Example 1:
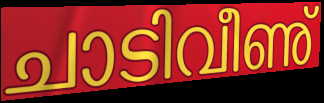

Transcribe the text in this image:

ചാടിവീണു്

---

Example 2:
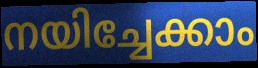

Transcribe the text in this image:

നയിച്ചേക്കാം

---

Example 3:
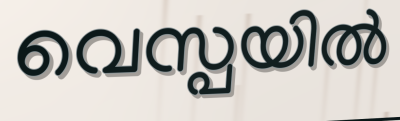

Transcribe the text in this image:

വെസ്പയിൽ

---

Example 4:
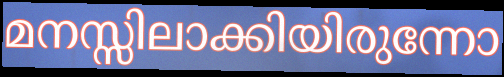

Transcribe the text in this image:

മനസ്സിലാക്കിയിരുന്നോ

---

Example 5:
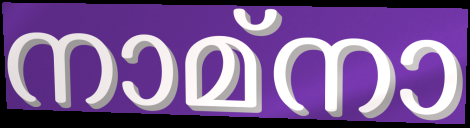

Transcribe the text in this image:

നാമ്നാ